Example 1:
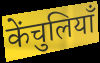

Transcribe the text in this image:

केंचुलियाँ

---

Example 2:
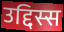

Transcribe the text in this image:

उद्दिस्स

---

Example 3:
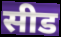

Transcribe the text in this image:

सीड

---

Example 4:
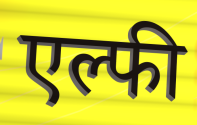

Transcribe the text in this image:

एल्फी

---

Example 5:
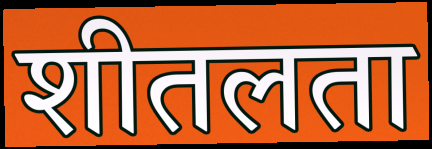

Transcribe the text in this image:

शीतलता